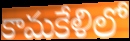
కామకేళిలో